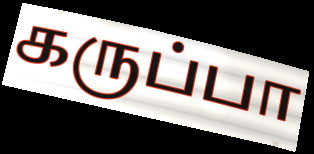
கருப்பா